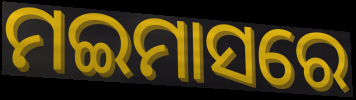
ମଇମାସରେ